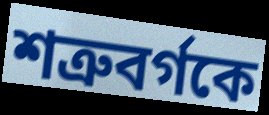
শত্রুবর্গকে